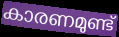
കാരണമുണ്ട്